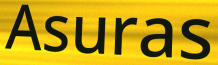
Asuras